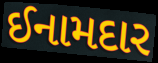
ઈનામદાર